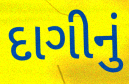
દાગીનું